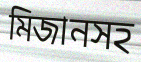
মিজানসহ